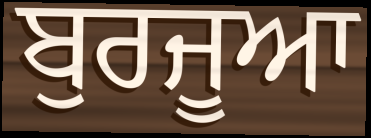
ਬੁਰਜੂਆ